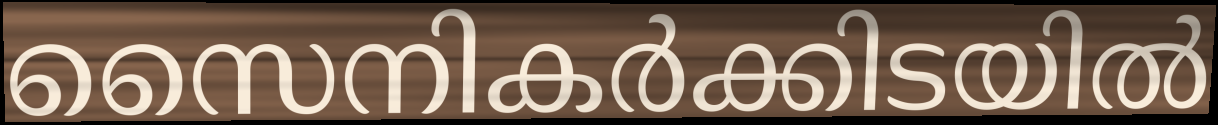
സൈനികർക്കിടയിൽ